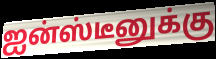
ஐன்ஸ்டீனுக்கு